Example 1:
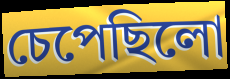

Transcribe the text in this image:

চেপেছিলো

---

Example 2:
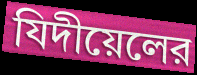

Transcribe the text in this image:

যিদীয়েলের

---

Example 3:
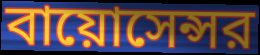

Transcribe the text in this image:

বায়োসেন্সর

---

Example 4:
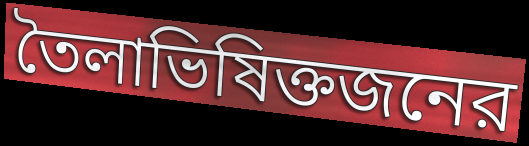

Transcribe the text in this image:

তৈলাভিষিক্তজনের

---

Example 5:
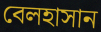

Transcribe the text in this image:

বেলহাসান